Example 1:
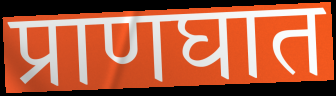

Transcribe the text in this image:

प्राणघात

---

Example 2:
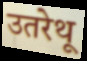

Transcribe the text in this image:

उतरेथू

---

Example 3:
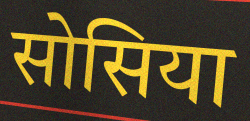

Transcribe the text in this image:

सोसिया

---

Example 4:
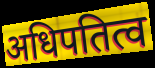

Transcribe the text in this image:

अधिपतित्व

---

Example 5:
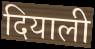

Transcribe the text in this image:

दियाली